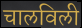
चालविली